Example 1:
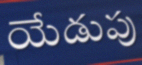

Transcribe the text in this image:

యేడుపు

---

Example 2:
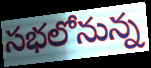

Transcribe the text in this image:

సభలోనున్న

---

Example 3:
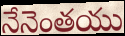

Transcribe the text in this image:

నేనెంతయు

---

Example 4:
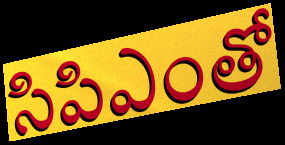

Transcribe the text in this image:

సిపిఎంతో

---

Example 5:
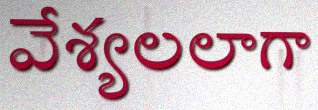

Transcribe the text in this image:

వేశ్యలలాగా